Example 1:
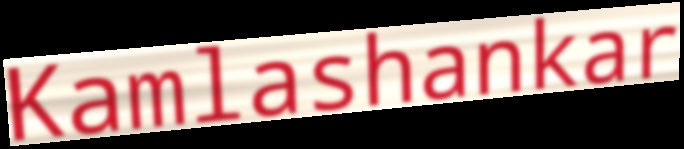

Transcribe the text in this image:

Kamlashankar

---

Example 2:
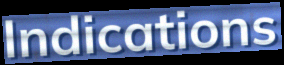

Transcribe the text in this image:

Indications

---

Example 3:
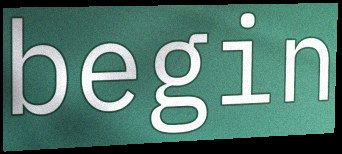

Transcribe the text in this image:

begin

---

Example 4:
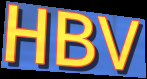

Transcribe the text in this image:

HBV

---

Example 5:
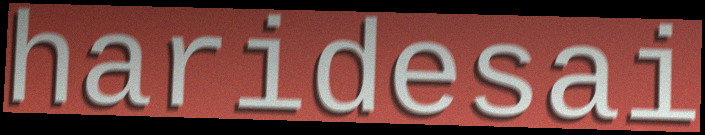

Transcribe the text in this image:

haridesai